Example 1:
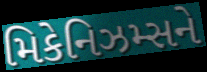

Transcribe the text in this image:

મિકેનિઝમ્સને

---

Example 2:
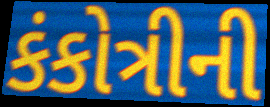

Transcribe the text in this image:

કંકોત્રીની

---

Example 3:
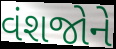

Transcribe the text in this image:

વંશજોને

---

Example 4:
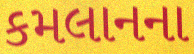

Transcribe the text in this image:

કમલાનના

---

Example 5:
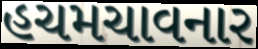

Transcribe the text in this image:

હચમચાવનાર